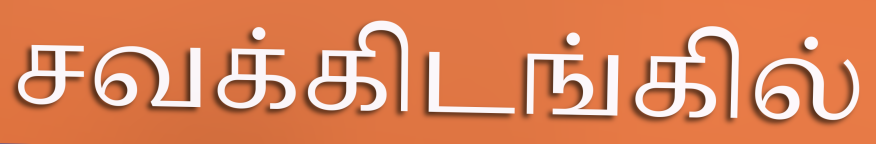
சவக்கிடங்கில்